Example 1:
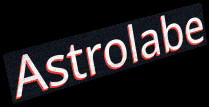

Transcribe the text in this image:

Astrolabe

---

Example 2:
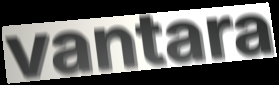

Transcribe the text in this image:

vantara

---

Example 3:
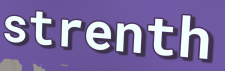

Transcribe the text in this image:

strenth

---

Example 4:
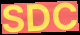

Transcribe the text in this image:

SDC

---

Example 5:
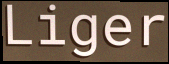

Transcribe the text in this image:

Liger